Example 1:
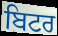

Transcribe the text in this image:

ਬਿਟਰ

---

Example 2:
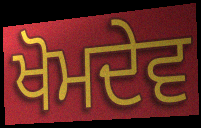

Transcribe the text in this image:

ਖੋਮਦੇਵ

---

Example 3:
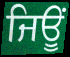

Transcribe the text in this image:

ਜਿਊਂ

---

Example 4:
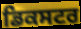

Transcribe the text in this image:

ਡਿਕਸਟਰ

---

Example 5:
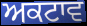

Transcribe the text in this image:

ਅਕਟਾਵ